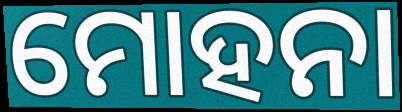
ମୋହନା